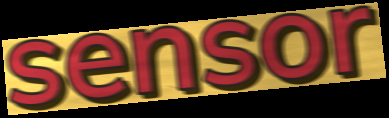
sensor